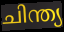
ചിന്ത്യ